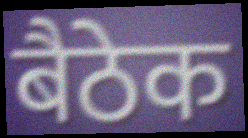
बैठेक